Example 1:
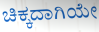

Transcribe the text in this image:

ಚಿಕ್ಕದಾಗಿಯೇ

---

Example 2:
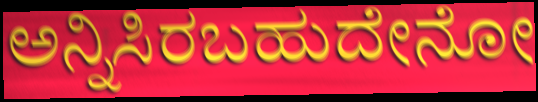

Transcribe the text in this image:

ಅನ್ನಿಸಿರಬಹುದೇನೋ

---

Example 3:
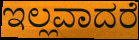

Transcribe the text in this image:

ಇಲ್ಲವಾದರೆ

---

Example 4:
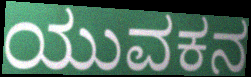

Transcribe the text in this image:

ಯುವಕನ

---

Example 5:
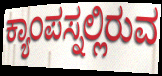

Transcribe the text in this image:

ಕ್ಯಾಂಪಸ್ನಲ್ಲಿರುವ